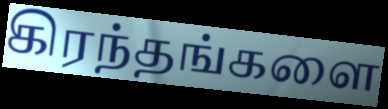
கிரந்தங்களை